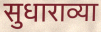
सुधाराव्या